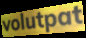
volutpat